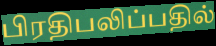
பிரதிபலிப்பதில்